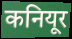
कनियूर